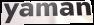
yaman